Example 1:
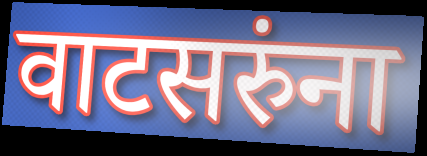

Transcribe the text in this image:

वाटसरुंना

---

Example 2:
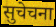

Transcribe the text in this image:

सुचेचना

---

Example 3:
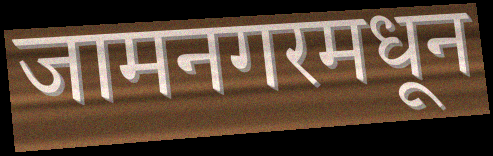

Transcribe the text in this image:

जामनगरमधून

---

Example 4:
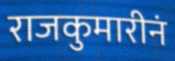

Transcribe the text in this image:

राजकुमारीनं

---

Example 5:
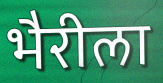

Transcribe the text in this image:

भैरीला